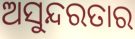
ଅସୁନ୍ଦରତାର